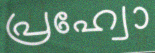
പ്രഹ്വോ